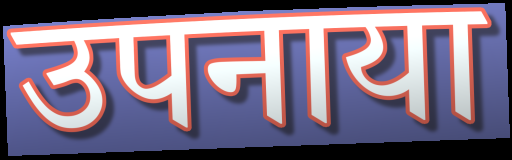
उपनाया